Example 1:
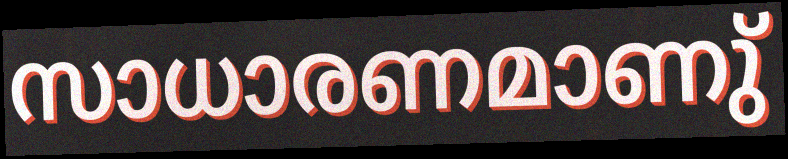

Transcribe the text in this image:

സാധാരണമാണു്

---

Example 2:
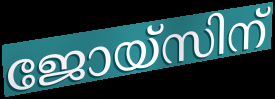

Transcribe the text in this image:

ജോയ്സിന്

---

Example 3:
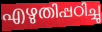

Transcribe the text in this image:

എഴുതിപ്പഠിച്ചു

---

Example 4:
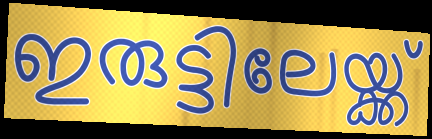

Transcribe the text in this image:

ഇരുട്ടിലേയ്ക്ക്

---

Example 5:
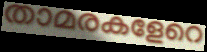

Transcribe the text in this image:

താമരകളേറെ